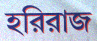
হরিরাজ